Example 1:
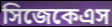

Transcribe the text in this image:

সিজেকেএস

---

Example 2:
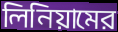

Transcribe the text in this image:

লিনিয়ামের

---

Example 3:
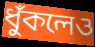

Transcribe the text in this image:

ধুঁকলেও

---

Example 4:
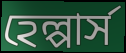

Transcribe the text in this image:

হেল্পার্স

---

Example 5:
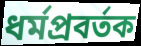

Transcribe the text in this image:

ধর্মপ্রবর্তক